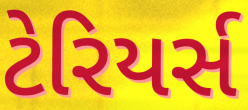
ટેરિયર્સ